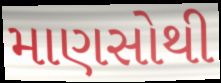
માણસોથી